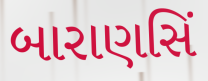
બારાણસિં